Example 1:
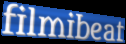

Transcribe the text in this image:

filmibeat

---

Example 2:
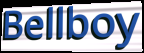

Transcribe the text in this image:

Bellboy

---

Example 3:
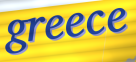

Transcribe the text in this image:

greece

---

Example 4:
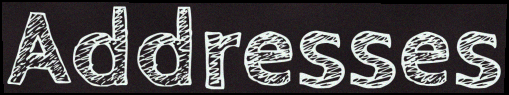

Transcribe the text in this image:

Addresses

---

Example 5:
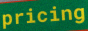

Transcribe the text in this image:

pricing